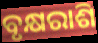
ବୃକ୍ଷରାଶି